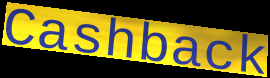
Cashback